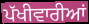
ਪੱਖੀਵਾਰੀਆਂ